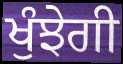
ਖੁੰਝੇਗੀ